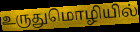
உருதுமொழியில்